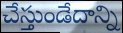
చేస్తుండేదాన్ని